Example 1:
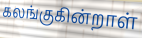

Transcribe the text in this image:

கலங்குகின்றாள்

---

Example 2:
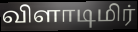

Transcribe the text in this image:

விளாடிமிர்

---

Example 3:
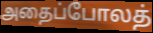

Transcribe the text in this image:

அதைப்போலத்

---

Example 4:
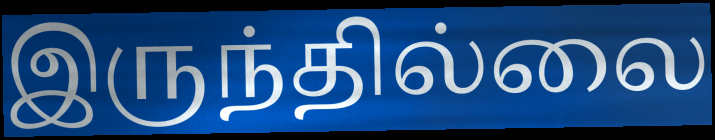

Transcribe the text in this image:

இருந்தில்லை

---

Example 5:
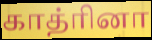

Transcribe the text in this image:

காத்ரினா